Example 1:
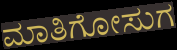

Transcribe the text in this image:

ಮಾತಿಗೋಸುಗ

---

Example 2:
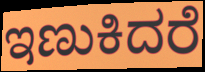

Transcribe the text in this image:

ಇಣುಕಿದರೆ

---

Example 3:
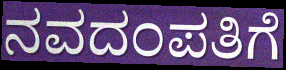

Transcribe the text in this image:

ನವದಂಪತಿಗೆ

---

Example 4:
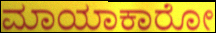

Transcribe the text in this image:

ಮಾಯಾಕಾರೋ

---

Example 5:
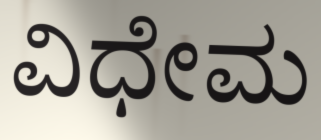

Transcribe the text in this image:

ವಿಧೇಮ